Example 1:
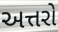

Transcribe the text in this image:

અત્તરો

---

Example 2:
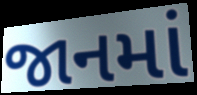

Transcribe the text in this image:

જાનમાં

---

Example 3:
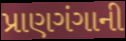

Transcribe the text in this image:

પ્રાણગંગાની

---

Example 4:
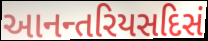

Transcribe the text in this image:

આનન્તરિયસદિસં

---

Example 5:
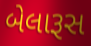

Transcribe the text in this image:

બેલારૂસ